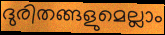
ദുരിതങ്ങളുമെല്ലാം